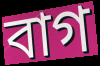
বাগ